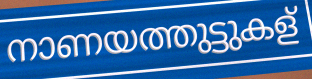
നാണയത്തുട്ടുകള്